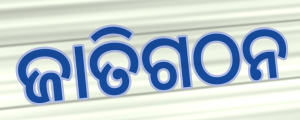
ଜାତିଗଠନ